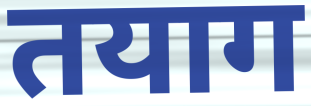
तयाग